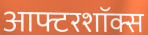
आफ्टरशॉक्स